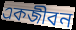
একজীবন